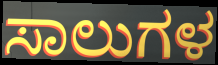
ಸಾಲುಗಳ